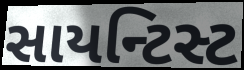
સાયન્ટિસ્ટ